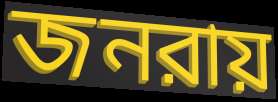
জনরায়